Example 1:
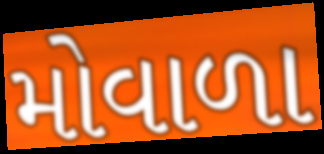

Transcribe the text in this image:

મોવાળા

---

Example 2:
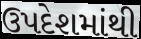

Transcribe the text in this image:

ઉપદેશમાંથી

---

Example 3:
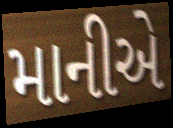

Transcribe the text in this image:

માનીએ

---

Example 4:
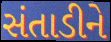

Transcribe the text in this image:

સંતાડીને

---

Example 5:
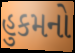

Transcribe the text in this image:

હુકમનો